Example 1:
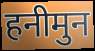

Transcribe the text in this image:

हनीमुन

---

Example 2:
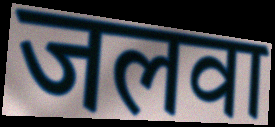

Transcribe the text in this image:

जलवा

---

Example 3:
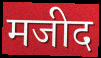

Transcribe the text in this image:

मजीद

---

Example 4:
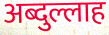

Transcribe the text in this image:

अब्दुल्लाह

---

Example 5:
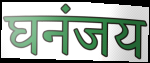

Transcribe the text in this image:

घनंजय